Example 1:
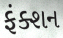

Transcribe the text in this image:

ફંક્શન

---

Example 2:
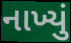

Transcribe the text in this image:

નાખ્યું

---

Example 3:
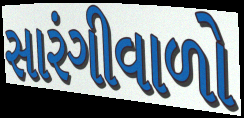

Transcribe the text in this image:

સારંગીવાળો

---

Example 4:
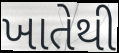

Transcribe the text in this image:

ખાતેથી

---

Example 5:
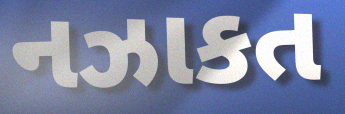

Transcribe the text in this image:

નઝાકત